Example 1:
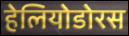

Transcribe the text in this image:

हेलियोडोरस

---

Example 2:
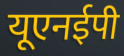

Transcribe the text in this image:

यूएनईपी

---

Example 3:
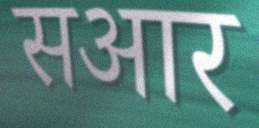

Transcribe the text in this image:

सआर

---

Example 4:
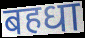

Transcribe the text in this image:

बहधा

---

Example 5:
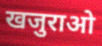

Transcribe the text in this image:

खजुराओ